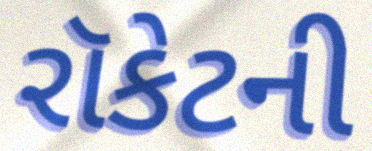
રૉકેટની